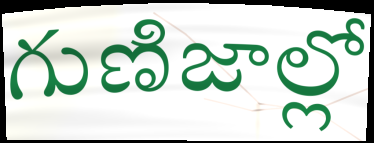
గుణిజాల్లో